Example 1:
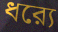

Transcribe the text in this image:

ধর‍্যে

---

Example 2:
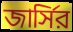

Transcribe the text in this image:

জার্সির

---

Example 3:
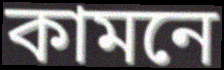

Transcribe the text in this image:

কামনে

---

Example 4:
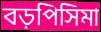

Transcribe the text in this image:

বড়পিসিমা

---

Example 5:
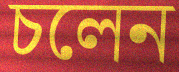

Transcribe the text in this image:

চলেন